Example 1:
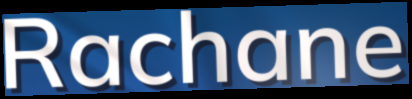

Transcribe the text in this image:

Rachane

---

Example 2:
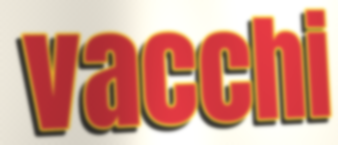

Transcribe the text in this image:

vacchi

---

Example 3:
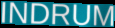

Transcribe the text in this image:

INDRUM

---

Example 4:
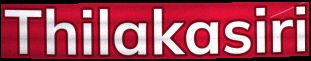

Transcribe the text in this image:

Thilakasiri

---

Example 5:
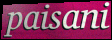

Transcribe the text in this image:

paisani